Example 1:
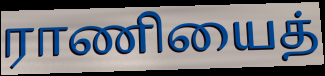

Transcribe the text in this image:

ராணியைத்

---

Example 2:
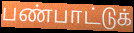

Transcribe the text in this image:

பண்பாட்டுக்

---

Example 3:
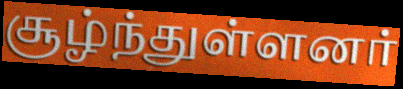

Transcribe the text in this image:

சூழ்ந்துள்ளனர்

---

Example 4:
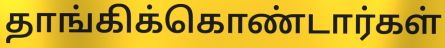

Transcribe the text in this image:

தாங்கிக்கொண்டார்கள்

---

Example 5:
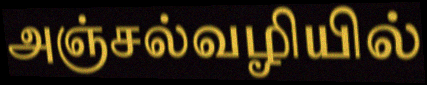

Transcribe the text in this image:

அஞ்சல்வழியில்